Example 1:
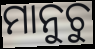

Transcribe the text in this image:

ମାନୁଚୁ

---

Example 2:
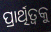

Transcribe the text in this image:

ପ୍ରାର୍ଥିତ୍ୱକୁ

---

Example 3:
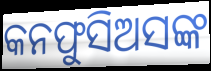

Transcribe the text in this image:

କନଫୁସିଅସଙ୍କ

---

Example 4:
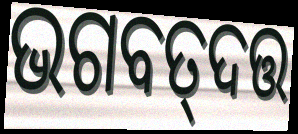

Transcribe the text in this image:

ଭଗବତ୍‌ଦତ୍ତ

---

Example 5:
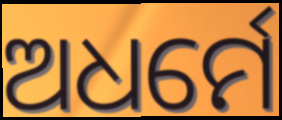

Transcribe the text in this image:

ଅଧର୍ମେ